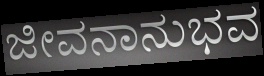
ಜೀವನಾನುಭವ